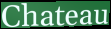
Chateau